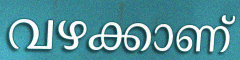
വഴക്കാണ്